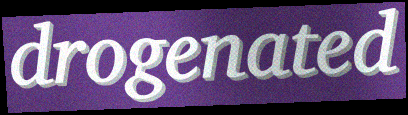
drogenated